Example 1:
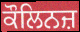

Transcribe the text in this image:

ਕੌਲਿਨਜ਼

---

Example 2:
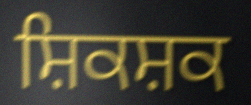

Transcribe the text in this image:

ਸ਼ਿਕਸ਼ਕ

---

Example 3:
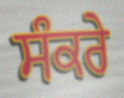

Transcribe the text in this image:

ਸੰਕਰੇ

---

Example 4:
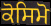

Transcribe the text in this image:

ਕੋਸਿਮੋ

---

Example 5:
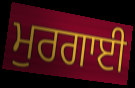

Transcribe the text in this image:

ਮੁਰਗਾਈ